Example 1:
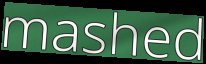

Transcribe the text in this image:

mashed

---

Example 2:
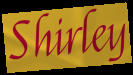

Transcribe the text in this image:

Shirley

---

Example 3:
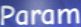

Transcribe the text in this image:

Param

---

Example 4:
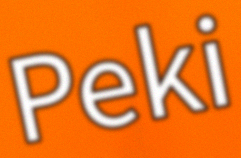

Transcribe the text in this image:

Peki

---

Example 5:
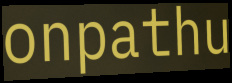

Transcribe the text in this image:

onpathu